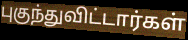
புகுந்துவிட்டார்கள்